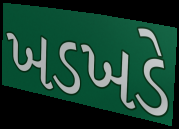
ખડખડે